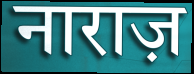
नाराज़